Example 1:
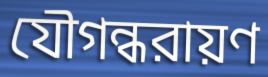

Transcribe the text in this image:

যৌগন্ধরায়ণ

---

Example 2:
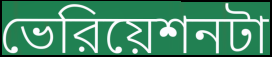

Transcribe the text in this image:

ভেরিয়েশনটা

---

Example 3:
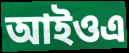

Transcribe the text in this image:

আইওএ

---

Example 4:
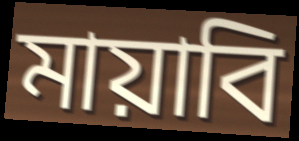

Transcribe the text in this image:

মায়াবি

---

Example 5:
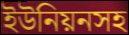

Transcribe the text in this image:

ইউনিয়নসহ